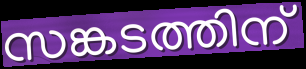
സങ്കടത്തിന്